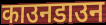
काउनडाउन